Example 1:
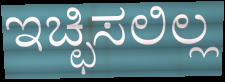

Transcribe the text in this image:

ಇಚ್ಛಿಸಲಿಲ್ಲ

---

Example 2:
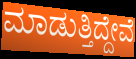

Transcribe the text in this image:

ಮಾಡುತ್ತಿದ್ದೇವೆ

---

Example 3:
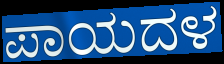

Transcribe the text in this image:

ಪಾಯದಳ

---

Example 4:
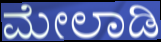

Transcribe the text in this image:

ಮೇಲಾಡಿ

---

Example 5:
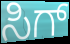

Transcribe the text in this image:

ಸಿಗ್